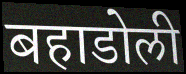
बहाडोली